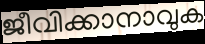
ജീവിക്കാനാവുക